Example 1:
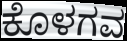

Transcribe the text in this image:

ಕೊಳಗವ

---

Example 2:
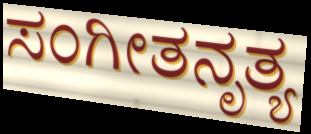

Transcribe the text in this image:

ಸಂಗೀತನೃತ್ಯ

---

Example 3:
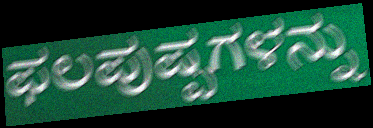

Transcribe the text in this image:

ಫಲಪುಷ್ಪಗಳನ್ನು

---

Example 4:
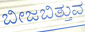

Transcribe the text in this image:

ಬೀಜಬಿತ್ತುವ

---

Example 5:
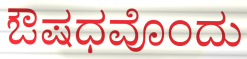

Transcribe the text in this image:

ಔಷಧವೊಂದು